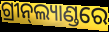
ଗ୍ରୀନ୍‍ଲ୍ୟାଣ୍ଡରେ